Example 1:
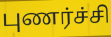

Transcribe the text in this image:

புணர்ச்சி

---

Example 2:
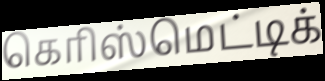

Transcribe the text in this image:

கெரிஸ்மெட்டிக்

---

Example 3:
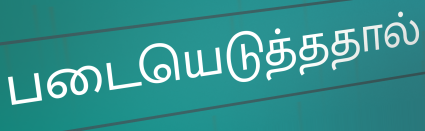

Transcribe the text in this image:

படையெடுத்ததால்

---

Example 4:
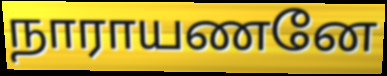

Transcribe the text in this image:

நாராயணனே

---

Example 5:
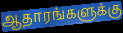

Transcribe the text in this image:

ஆதாரங்களுக்கு